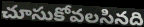
చూసుకోవలసినది